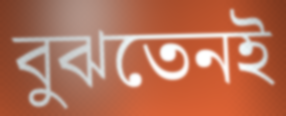
বুঝতেনই